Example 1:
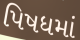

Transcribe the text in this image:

પિષધમાં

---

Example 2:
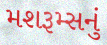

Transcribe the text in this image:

મશરૂમ્સનું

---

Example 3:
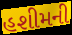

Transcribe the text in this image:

હશીમની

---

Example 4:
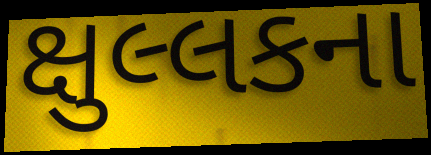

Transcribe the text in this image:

ક્ષુલ્લકના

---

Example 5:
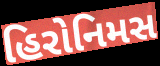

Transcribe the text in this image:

હિરોનિમસ